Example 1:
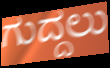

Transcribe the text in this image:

ಗುದ್ದಲು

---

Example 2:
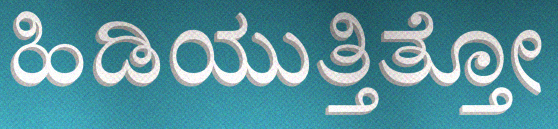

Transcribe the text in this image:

ಹಿಡಿಯುತ್ತಿತ್ತೋ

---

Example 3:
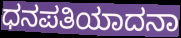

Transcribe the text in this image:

ಧನಪತಿಯಾದನಾ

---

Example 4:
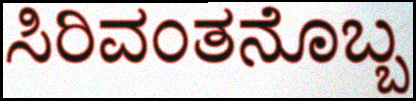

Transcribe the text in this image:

ಸಿರಿವಂತನೊಬ್ಬ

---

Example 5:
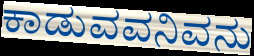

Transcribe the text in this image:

ಕಾಡುವವನಿವನು